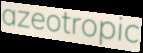
azeotropic